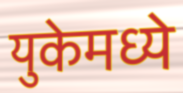
युकेमध्ये